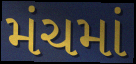
મંચમાં